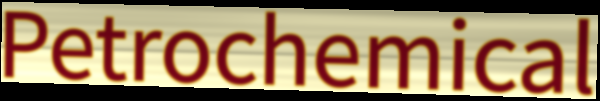
Petrochemical